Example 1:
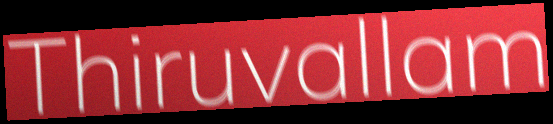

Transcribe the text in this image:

Thiruvallam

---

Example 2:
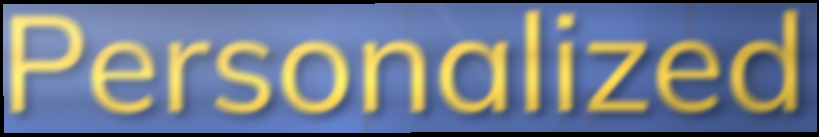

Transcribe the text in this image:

Personalized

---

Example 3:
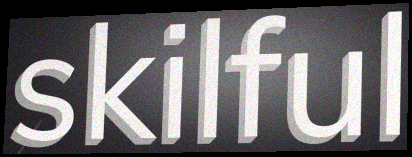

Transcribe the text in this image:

skilful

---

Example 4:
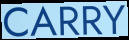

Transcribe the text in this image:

CARRY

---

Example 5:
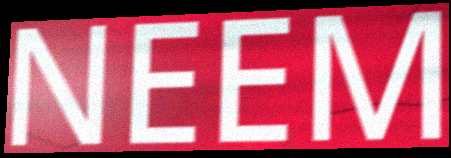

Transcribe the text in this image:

NEEM